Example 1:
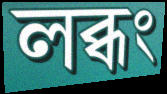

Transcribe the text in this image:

লব্ধং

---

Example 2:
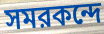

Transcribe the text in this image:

সমরকন্দে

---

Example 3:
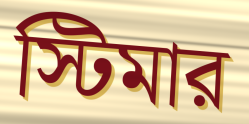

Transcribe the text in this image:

স্টিমার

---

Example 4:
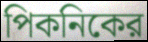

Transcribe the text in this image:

পিকনিকের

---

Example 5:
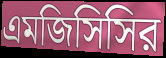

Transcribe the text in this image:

এমজিসিসির